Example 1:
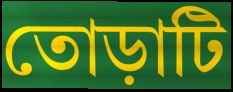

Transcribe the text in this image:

তোড়াটি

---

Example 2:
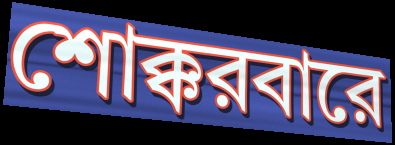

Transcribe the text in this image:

শোক্করবারে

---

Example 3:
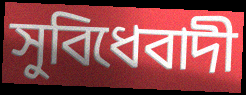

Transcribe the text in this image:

সুবিধেবাদী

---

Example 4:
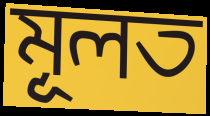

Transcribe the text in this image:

মূলত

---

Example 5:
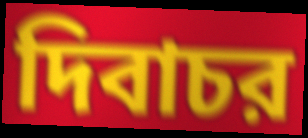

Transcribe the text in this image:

দিবাচর